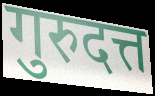
गुरुदत्त